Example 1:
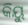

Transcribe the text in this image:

କିୟୁ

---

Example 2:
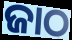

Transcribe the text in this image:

ଜାଠ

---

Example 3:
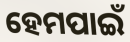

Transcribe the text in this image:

ହେମପାଇଁ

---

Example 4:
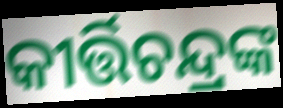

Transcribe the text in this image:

କୀର୍ତ୍ତିଚନ୍ଦ୍ରଙ୍କ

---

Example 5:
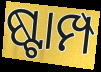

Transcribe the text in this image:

ଷ୍ଟାମ୍ପ